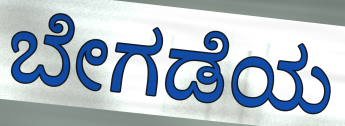
ಬೇಗಡೆಯ